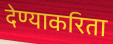
देण्याकरिता